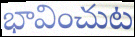
భావించుట